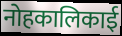
नोहकालिकाई